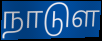
நாடுள